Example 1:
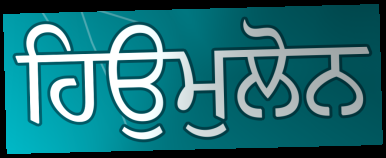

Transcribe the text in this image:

ਹਿਉਮੁਲੋਨ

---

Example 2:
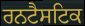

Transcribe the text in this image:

ਰਨਟੈਸਟਿਕ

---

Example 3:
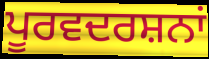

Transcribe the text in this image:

ਪੂਰਵਦਰਸ਼ਨਾਂ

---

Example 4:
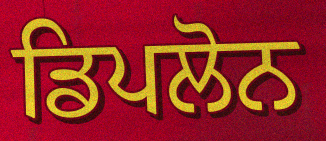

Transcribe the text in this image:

ਡਿਪਲੋਨ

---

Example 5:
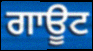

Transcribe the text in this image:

ਗਾਊਟ